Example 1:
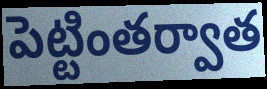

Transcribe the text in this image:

పెట్టింతర్వాత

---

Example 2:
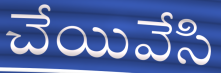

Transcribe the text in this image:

చేయివేసి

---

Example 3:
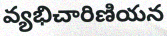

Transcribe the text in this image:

వ్యభిచారిణియన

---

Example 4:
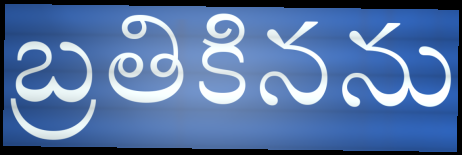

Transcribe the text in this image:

బ్రతికినను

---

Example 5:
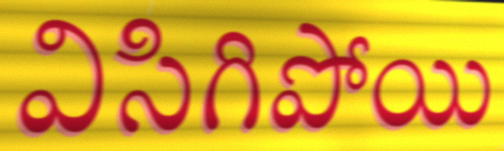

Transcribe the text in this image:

విసిగిపోయి